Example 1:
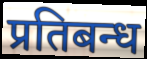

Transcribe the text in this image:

प्रतिबन्ध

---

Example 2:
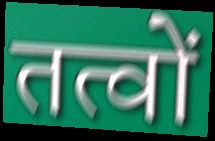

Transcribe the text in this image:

तत्वों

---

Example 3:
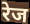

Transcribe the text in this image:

रेज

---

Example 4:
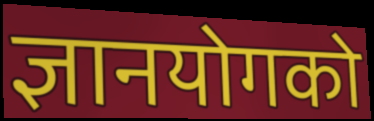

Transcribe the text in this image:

ज्ञानयोगको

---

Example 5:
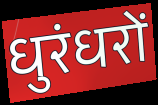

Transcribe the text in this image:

धुरंधरों